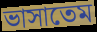
ভাসাতেম